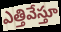
ఎత్తివేస్తూ